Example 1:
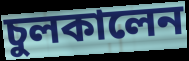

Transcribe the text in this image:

চুলকালেন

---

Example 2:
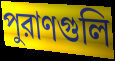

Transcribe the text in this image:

পুরাণগুলি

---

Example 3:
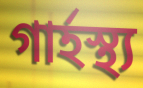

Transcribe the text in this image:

গার্হস্থ্য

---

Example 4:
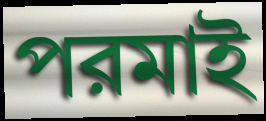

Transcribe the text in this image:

পরমাই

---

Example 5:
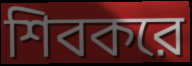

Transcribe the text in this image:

শিবকরে